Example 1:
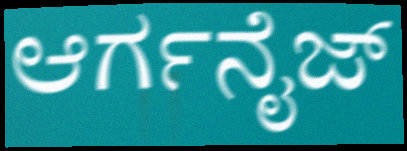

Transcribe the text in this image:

ಆರ್ಗನೈಜ್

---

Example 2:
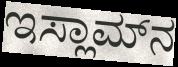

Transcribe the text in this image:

ಇಸ್ಲಾಮ್‌ನ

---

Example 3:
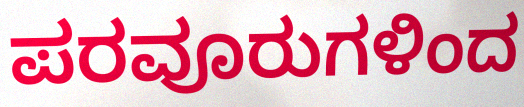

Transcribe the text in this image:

ಪರವೂರುಗಳಿಂದ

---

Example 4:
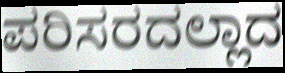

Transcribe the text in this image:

ಪರಿಸರದಲ್ಲಾದ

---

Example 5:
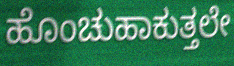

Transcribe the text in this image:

ಹೊಂಚುಹಾಕುತ್ತಲೇ